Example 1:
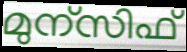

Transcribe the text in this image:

മുന്സിഫ്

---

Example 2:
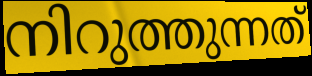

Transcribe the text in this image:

നിറുത്തുന്നത്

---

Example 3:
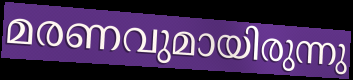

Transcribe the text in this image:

മരണവുമായിരുന്നു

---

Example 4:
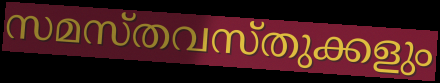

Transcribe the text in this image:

സമസ്തവസ്തുക്കളും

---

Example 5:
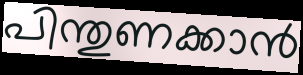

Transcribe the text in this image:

പിന്തുണക്കാൻ